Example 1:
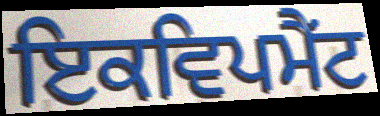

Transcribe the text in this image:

ਇਕਵਿਪਮੈਂਟ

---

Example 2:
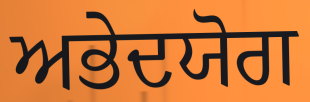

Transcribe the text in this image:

ਅਭੇਦਯੋਗ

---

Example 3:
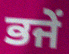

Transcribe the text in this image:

ਭਜੇਂ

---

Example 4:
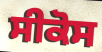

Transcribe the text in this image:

ਸੀਕੋਸ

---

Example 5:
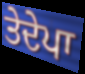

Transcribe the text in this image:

ਤੇਦੇਪਾ